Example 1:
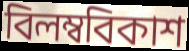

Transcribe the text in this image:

বিলম্ববিকাশ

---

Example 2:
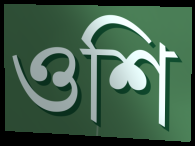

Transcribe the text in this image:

ওশি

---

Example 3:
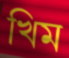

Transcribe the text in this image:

খিম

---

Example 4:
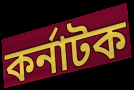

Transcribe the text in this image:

কর্নাটক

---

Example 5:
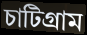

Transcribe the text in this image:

চাটিগ্রাম